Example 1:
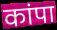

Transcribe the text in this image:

कांपा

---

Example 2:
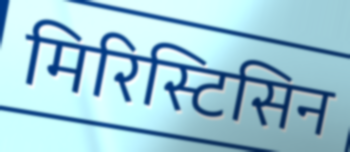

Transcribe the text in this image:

मिरिस्टिसिन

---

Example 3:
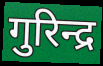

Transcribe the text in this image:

गुरिन्द्र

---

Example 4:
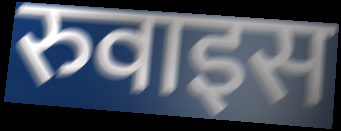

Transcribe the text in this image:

रुवाइस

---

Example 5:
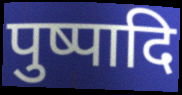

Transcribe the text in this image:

पुष्पादि